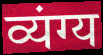
व्यंग्य